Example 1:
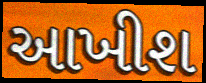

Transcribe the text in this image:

આખીશ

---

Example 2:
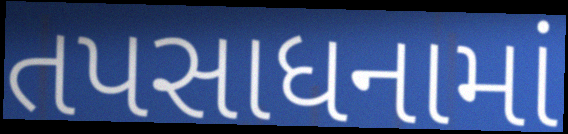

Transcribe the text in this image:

તપસાધનામાં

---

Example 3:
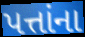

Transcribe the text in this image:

પત્તાંના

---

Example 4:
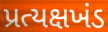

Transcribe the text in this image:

પ્રત્યક્ષખંડ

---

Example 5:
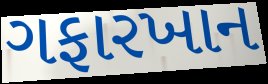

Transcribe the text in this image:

ગફારખાન